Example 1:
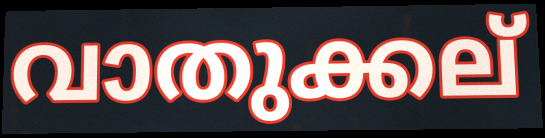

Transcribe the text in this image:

വാതുക്കല്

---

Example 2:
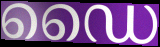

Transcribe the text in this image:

ഡൈ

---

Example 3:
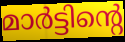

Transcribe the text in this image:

മാർട്ടിന്റെ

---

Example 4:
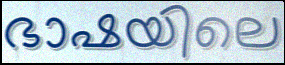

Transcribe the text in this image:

ഭാഷയിലെ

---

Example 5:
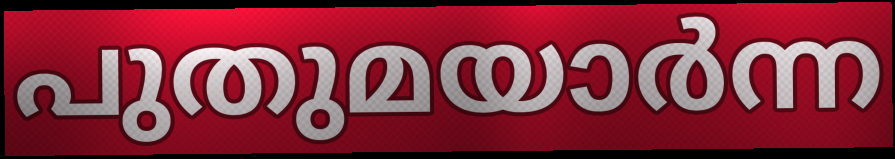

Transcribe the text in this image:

പുതുമയാർന്ന